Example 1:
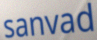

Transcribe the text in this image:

sanvad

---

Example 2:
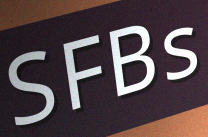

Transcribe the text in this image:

SFBs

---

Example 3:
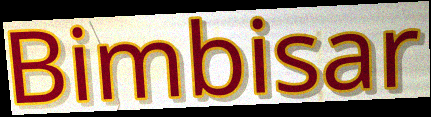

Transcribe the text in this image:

Bimbisar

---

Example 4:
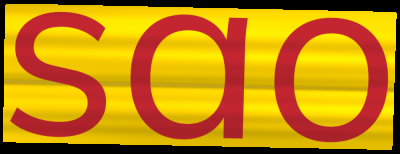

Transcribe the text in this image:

sao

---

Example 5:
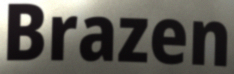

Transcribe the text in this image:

Brazen